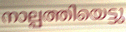
നാല്പത്തിയെട്ടു